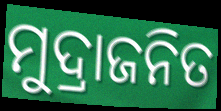
ମୁଦ୍ରାଜନିତ